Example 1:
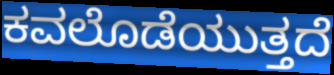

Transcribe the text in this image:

ಕವಲೊಡೆಯುತ್ತದೆ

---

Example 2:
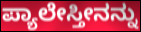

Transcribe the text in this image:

ಪ್ಯಾಲೇಸ್ತೀನನ್ನು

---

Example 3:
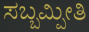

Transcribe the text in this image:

ಸಬ್ಬಮ್ಪೀತಿ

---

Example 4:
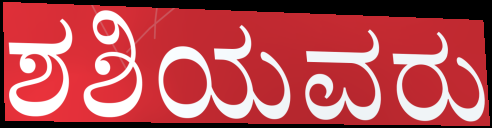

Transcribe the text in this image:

ಶಶಿಯವರು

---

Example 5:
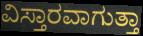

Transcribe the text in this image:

ವಿಸ್ತಾರವಾಗುತ್ತಾ